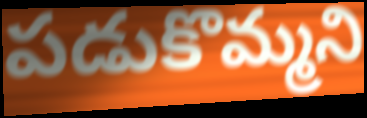
పడుకొమ్మని